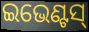
ଇଭେଣ୍ଟସ୍